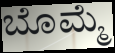
ಬೊಮ್ಮೆ